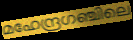
മഹേന്ദ്രഗഞ്ചിലെ